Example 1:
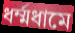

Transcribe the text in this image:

ধর্ম্মধামে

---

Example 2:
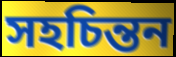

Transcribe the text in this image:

সহচিন্তন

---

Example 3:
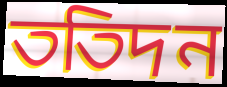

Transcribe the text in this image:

ততিদন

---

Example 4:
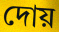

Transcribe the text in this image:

দোয়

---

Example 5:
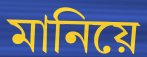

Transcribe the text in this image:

মানিয়ে